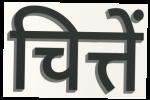
चित्तें